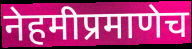
नेहमीप्रमाणेच